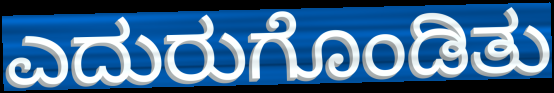
ಎದುರುಗೊಂಡಿತು